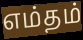
எம்தம்